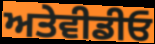
ਅਤੇਵੀਡੀਓ